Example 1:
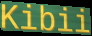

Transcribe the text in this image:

Kibii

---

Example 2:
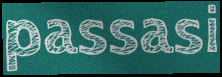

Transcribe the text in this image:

passasi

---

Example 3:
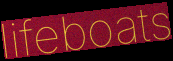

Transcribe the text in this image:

lifeboats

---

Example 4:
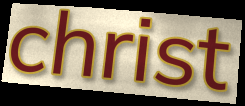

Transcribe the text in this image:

christ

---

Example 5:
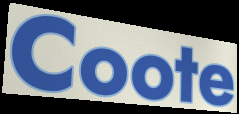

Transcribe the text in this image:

Coote